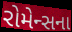
રોમેન્સના